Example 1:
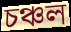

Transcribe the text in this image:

চঞ্চল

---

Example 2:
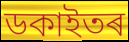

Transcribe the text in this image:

ডকাইতৰ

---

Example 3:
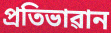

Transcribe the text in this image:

প্ৰতিভাৱান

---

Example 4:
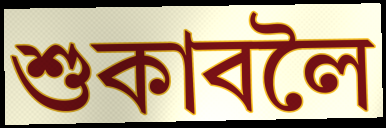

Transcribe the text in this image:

শুকাবলৈ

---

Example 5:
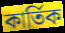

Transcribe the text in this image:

কাৰ্তিক